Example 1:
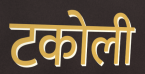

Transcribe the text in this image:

टकोली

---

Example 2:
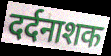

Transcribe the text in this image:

दर्दनाशक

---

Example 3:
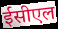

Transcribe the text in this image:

ईसीएल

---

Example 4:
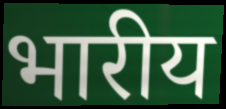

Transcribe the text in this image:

भारीय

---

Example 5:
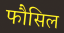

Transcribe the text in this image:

फौसिल